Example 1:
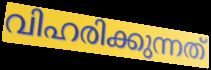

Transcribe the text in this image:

വിഹരിക്കുന്നത്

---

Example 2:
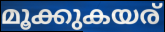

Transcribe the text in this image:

മൂക്കുകയര്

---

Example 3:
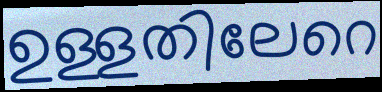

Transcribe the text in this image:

ഉള്ളതിലേറെ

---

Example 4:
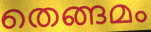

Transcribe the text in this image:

തെങ്ങമം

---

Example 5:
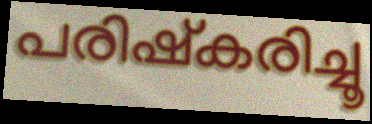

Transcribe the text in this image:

പരിഷ്കരിച്ചൂ